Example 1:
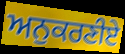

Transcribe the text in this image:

ਅਨੁਕਰਣੀਏ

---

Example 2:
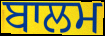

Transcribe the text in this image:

ਬਾਲਮ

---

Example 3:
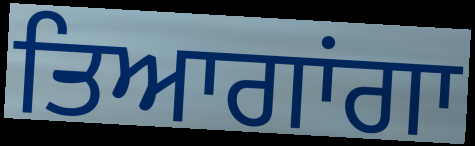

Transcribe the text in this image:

ਤਿਆਗਾਂਗਾ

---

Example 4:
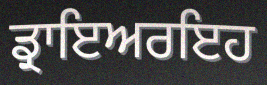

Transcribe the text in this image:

ਡ੍ਰਾਇਅਰਇਹ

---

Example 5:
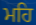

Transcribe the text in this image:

ਮਹਿ